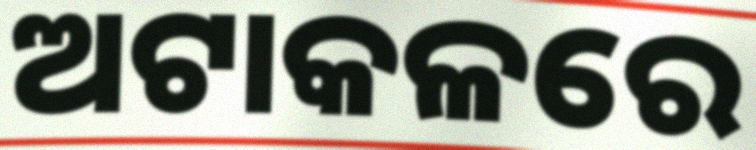
ଅଟାକଳରେ